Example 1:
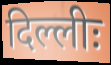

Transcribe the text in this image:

दिल्लीः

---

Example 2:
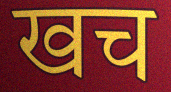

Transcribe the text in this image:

खच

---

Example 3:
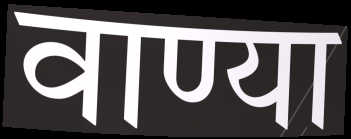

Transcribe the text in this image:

वाण्या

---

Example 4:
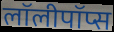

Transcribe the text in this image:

लॉलीपॉप्स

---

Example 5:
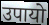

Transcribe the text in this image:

उपायो